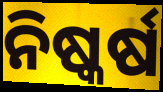
ନିଷ୍କର୍ଷ